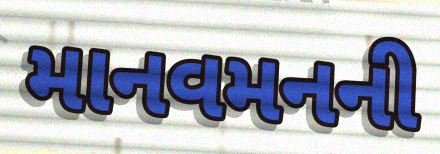
માનવમનની